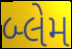
બ્લેમ